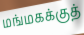
மங்மகக்குத்